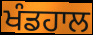
ਖੰਡਹਾਲ